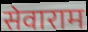
सेवाराम